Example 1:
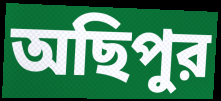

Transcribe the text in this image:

অছিপুর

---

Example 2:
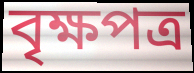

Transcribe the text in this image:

বৃক্ষপত্র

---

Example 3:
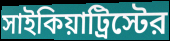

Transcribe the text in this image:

সাইকিয়াট্রিস্টের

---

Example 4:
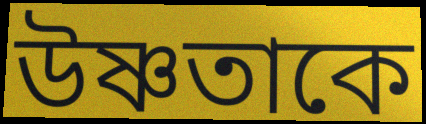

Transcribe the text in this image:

উষ্ণতাকে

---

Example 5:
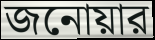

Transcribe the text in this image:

জনোয়ার